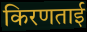
किरणताई